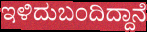
ಇಳಿದುಬಂದಿದ್ದಾನೆ